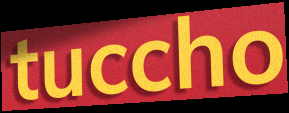
tuccho